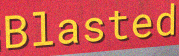
Blasted